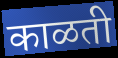
काळती